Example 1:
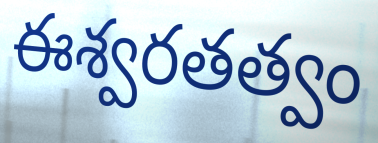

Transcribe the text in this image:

ఈశ్వరతత్వం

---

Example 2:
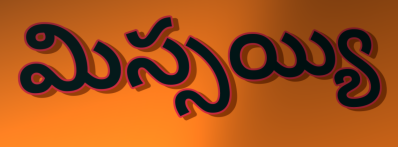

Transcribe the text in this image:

మిస్సయ్యి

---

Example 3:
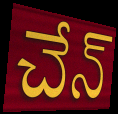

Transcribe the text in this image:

చేన్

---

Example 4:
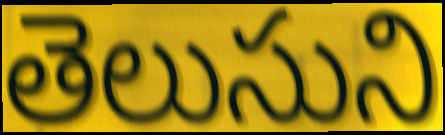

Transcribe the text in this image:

తెలుసుని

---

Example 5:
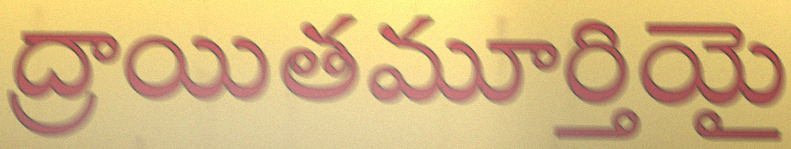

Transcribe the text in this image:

ద్రాయితమూర్తియై